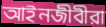
আইনজীবীরা